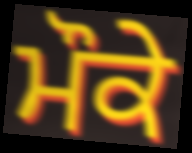
ਮੌਕੇ